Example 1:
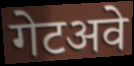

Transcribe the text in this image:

गेटअवे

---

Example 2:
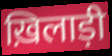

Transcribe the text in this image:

ख़िलाड़ी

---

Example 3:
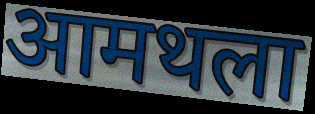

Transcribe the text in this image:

आमथला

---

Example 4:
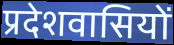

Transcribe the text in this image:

प्रदेशवासियों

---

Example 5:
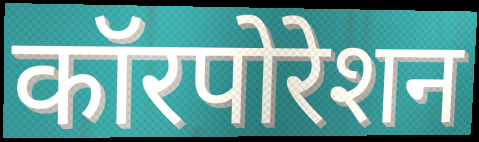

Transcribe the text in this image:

कॉरपोरेशन